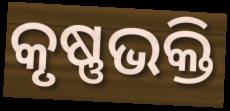
କୃଷ୍ଣଭକ୍ତି